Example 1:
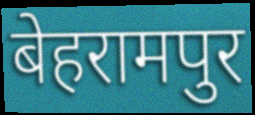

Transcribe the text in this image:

बेहरामपुर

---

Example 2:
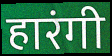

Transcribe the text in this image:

हारंगी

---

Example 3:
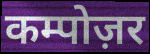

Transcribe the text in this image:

कम्पोज़र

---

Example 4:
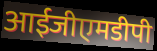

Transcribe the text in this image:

आईजीएमडीपी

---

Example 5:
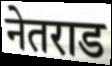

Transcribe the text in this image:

नेतराड